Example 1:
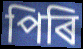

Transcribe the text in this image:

পিৰি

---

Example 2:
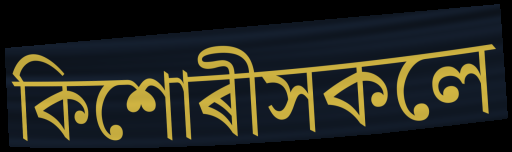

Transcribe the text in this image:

কিশোৰীসকলে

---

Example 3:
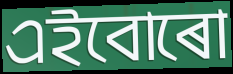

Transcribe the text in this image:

এইবোৰো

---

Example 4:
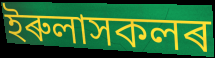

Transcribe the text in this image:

ইৰুলাসকলৰ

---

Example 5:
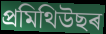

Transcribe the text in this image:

প্ৰমিথিউছৰ